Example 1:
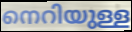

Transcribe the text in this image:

നെറിയുള്ള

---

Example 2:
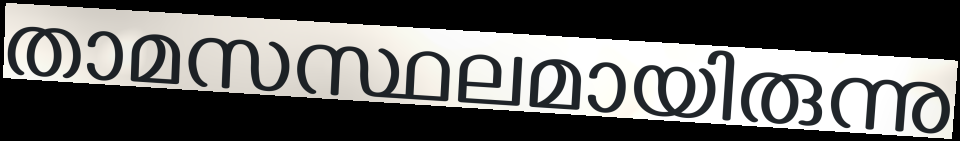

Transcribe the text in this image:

താമസസ്ഥലമായിരുന്നു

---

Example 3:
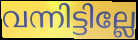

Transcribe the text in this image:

വന്നിട്ടില്ലേ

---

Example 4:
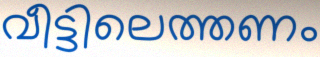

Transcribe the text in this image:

വീട്ടിലെത്തണം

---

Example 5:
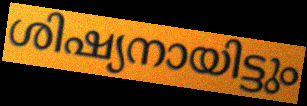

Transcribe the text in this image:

ശിഷ്യനായിട്ടും